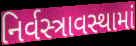
નિર્વસ્ત્રાવસ્થામાં